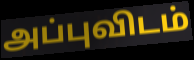
அப்புவிடம்